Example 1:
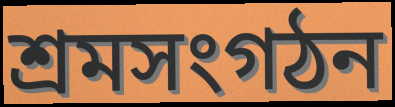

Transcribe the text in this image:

শ্রমসংগঠন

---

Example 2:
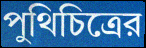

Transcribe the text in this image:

পুথিচিত্রের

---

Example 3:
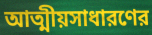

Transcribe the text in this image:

আত্মীয়সাধারণের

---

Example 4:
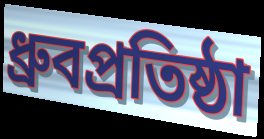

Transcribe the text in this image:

ধ্রুবপ্রতিষ্ঠা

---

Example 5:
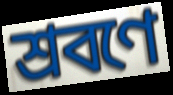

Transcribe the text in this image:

শ্রবণে